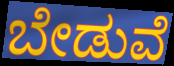
ಬೇಡುವೆ